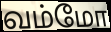
வம்மோ